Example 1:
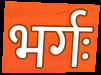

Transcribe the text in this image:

भर्गः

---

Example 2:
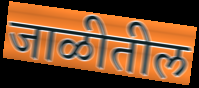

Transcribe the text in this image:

जाळीतील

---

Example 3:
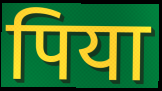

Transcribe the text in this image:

पिया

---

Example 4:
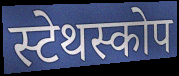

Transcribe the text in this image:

स्टेथस्कोप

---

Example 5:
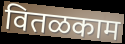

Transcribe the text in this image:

वितळकाम